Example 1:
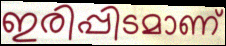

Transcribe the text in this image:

ഇരിപ്പിടമാണ്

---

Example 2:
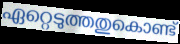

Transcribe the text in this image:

ഏറ്റെടുത്തതുകൊണ്ട്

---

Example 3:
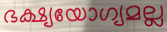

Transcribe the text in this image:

ഭക്ഷ്യയോഗ്യമല്ല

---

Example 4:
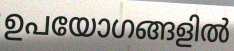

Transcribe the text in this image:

ഉപയോഗങ്ങളിൽ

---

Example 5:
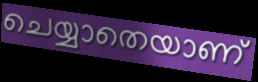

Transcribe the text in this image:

ചെയ്യാതെയാണ്